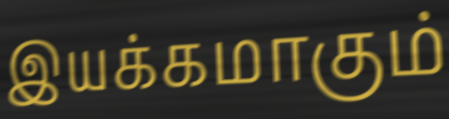
இயக்கமாகும்